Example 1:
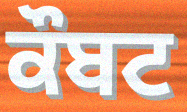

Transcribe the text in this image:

ਕੌਬਟ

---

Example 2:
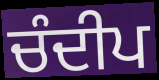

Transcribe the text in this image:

ਚੰਦੀਪ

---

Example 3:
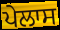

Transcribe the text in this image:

ਪੇਲਾਸ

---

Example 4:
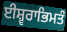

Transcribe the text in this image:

ਈਸ਼੍ਵਰਾਭਿਮਤੰ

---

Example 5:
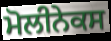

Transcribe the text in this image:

ਮੋਲੀਨੇਕਸ